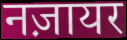
नज़ायर